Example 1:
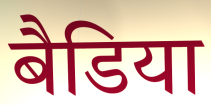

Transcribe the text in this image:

बैडिया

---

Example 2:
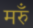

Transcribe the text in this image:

मरुँ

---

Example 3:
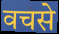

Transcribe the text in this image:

वचसे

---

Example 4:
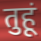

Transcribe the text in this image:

तुहूं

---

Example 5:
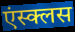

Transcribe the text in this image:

एंस्क्लस